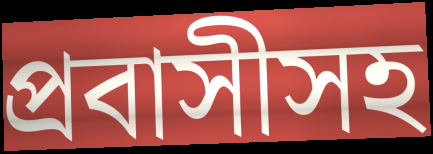
প্রবাসীসহ